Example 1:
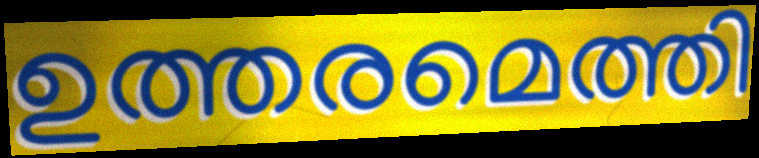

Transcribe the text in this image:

ഉത്തരമെത്തി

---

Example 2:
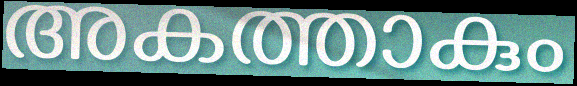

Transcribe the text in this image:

അകത്താകും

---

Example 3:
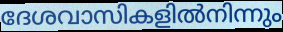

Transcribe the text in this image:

ദേശവാസികളിൽനിന്നും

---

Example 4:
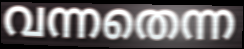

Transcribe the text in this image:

വന്നതെന്ന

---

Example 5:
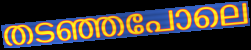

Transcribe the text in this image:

തടഞ്ഞപോലെ